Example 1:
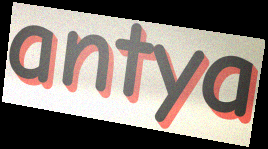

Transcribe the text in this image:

antya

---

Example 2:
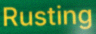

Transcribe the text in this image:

Rusting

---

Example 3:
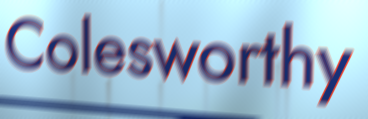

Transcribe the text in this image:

Colesworthy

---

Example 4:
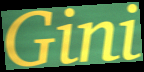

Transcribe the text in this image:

Gini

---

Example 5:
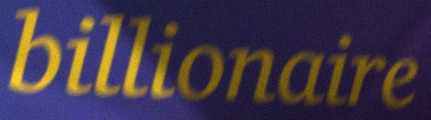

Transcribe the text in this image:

billionaire